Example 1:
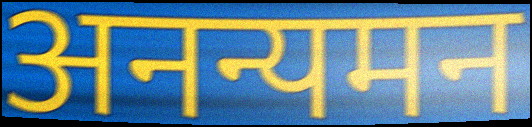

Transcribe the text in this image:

अनन्यमन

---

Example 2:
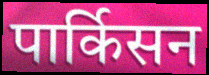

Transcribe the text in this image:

पार्किसन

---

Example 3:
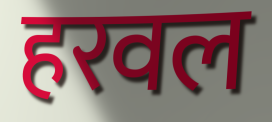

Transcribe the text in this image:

हरवल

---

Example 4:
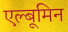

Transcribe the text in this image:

एल्बूमिन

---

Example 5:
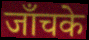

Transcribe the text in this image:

जाँचके